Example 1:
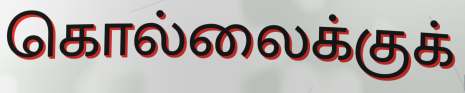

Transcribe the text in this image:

கொல்லைக்குக்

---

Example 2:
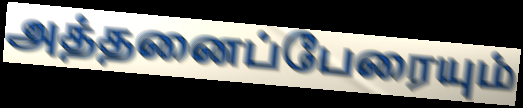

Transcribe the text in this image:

அத்தனைப்பேரையும்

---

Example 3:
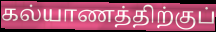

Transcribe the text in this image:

கல்யாணத்திற்குப்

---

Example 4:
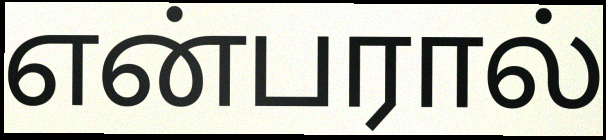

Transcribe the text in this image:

என்பரால்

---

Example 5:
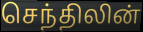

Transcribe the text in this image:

செந்திலின்